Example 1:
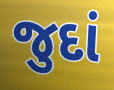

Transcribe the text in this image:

જુદાં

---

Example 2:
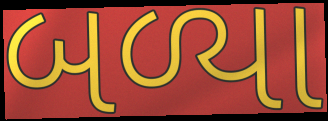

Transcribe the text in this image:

બળ્યા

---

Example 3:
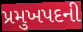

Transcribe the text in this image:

પ્રમુખપદની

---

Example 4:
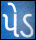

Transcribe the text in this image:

પેડ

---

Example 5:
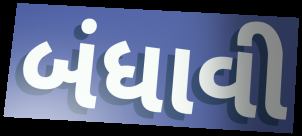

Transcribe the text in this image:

બંધાવી